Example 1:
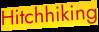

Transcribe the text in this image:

Hitchhiking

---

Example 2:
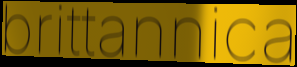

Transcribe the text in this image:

brittannica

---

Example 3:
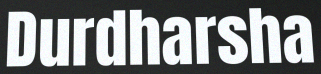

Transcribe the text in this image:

Durdharsha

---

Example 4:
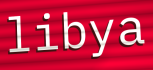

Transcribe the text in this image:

libya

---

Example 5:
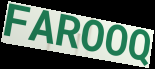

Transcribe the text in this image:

FAROOQ